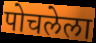
पोचलेला